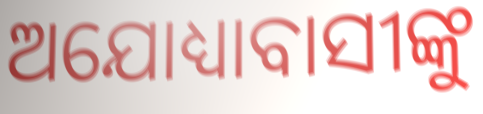
ଅଯୋଧ୍ୟାବାସୀଙ୍କୁ